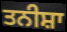
ਤਨੀਸ਼ਾ